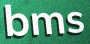
bms